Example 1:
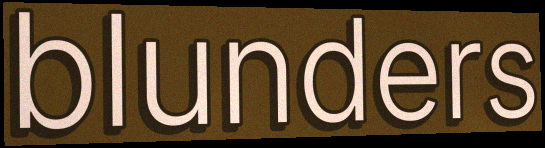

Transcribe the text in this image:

blunders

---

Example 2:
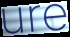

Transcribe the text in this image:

ure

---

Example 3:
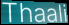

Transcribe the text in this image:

Thaali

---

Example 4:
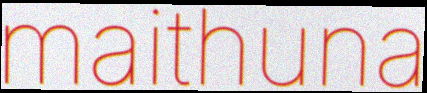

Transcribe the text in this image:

maithuna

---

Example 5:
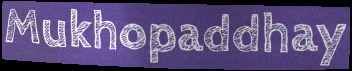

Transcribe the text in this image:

Mukhopaddhay